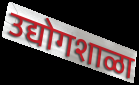
उद्योगशाळा